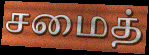
சமைத்